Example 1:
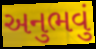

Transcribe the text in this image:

અનુભવું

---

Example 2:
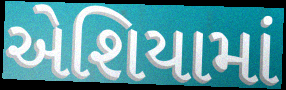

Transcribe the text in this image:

એશિયામાં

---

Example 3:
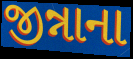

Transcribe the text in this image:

જીન્નાના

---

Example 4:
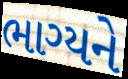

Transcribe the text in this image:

ભાગ્યને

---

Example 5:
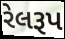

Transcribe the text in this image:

રેલરૂપ